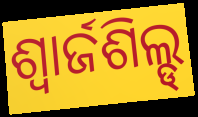
ଶ୍ୱାର୍ଜଶିଲ୍ଡ୍